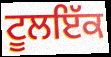
ਟੂਲਇੱਕ